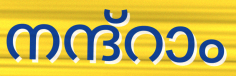
നന്ദ്റാം